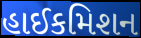
હાઈકમિશન